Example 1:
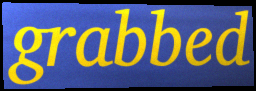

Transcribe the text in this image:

grabbed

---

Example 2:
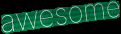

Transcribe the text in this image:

awesome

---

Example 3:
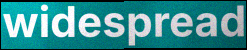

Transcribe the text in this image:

widespread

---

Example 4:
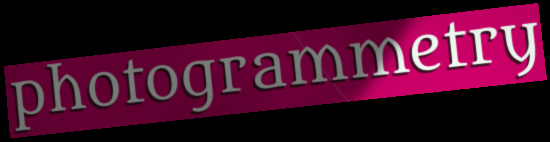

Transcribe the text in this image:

photogrammetry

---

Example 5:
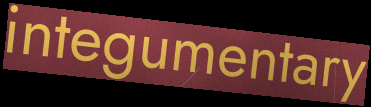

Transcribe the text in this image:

integumentary